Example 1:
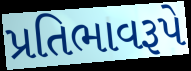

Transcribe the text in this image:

પ્રતિભાવરૂપે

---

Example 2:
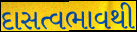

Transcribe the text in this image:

દાસત્વભાવથી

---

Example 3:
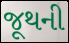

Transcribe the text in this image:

જૂથની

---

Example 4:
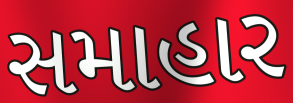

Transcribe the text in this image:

સમાહાર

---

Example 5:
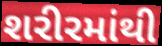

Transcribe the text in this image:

શરીરમાંથી